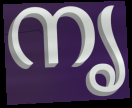
നൃ